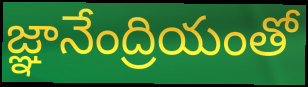
జ్ఞానేంద్రియంతో